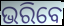
ଭରିବେ